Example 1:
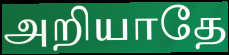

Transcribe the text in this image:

அறியாதே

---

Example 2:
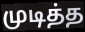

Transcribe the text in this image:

முடித்த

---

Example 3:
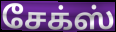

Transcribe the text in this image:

சேக்ஸ்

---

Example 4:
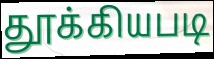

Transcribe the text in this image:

தூக்கியபடி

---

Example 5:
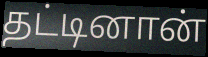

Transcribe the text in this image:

தட்டினான்